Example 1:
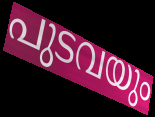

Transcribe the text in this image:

പുടവയും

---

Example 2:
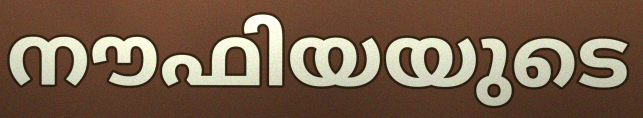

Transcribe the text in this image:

നൗഫിയയുടെ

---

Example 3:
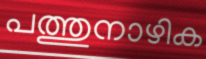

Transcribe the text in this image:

പത്തുനാഴിക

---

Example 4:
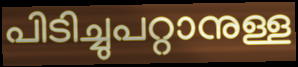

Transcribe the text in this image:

പിടിച്ചുപറ്റാനുള്ള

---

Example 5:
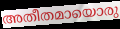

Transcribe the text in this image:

അതീതമായൊരു